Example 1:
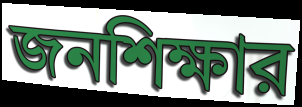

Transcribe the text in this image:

জনশিক্ষার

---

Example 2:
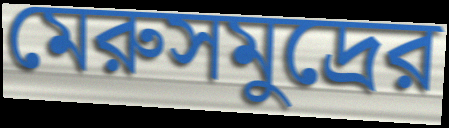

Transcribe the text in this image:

মেরুসমুদ্রের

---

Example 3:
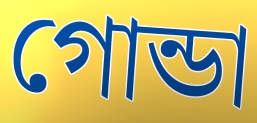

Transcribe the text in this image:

গোন্ডা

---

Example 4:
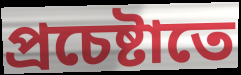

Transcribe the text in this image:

প্রচেষ্টাতে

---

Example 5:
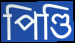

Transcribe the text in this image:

পিণ্ডি